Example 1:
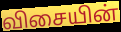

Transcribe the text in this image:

விசையின்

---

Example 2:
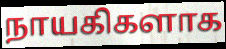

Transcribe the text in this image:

நாயகிகளாக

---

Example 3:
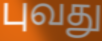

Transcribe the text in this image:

புவது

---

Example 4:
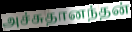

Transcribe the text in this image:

அச்சுதானந்தன்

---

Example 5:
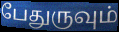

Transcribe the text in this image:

பேதுருவும்